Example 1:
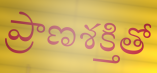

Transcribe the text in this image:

ప్రాణశక్తితో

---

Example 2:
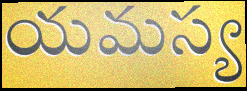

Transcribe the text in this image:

యమస్య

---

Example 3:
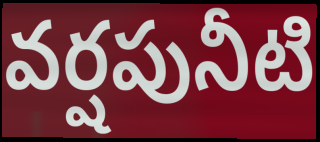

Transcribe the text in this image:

వర్షపునీటి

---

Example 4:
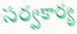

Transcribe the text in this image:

సర్వకార్య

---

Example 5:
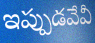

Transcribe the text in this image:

ఇప్పుడవేవీ